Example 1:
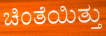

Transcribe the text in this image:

ಚಿಂತೆಯಿತ್ತು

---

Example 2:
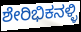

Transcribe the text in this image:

ಶೇರಿಭಿಕನಳ್ಳಿ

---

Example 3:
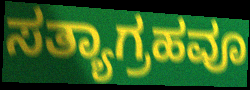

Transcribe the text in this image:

ಸತ್ಯಾಗ್ರಹವೂ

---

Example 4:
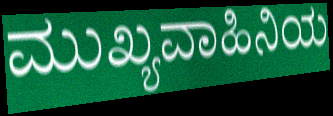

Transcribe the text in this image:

ಮುಖ್ಯವಾಹಿನಿಯ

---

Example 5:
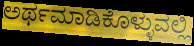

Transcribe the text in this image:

ಅರ್ಥಮಾಡಿಕೊಳ್ಳುವಲ್ಲಿ